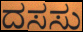
ದಸಸು